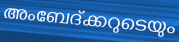
അംബേദ്ക്കറുടെയും